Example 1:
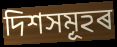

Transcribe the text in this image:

দিশসমূহৰ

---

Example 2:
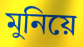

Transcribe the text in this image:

মুনিয়ে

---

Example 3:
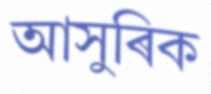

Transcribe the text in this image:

আসুৰিক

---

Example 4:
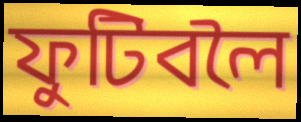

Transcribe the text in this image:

ফুটিবলৈ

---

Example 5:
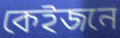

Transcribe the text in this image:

কেইজনে